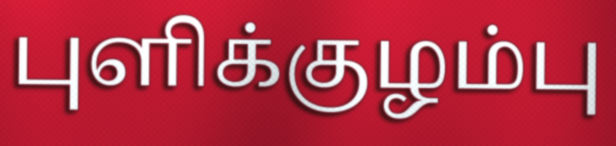
புளிக்குழம்பு